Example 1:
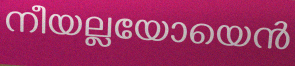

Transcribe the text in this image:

നീയല്ലയോയെൻ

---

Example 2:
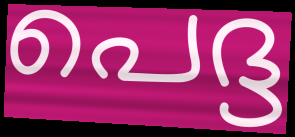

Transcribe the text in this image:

പെദ്ദ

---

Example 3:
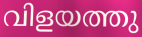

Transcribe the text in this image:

വിളയത്തു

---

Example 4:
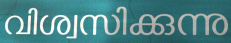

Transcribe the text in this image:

വിശ്വസിക്കുന്നു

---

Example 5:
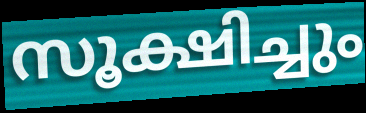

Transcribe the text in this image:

സൂക്ഷിച്ചും